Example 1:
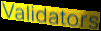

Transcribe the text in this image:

Validators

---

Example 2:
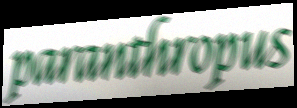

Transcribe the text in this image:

paranthropus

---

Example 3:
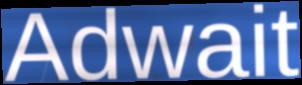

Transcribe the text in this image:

Adwait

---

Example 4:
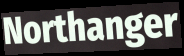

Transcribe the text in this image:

Northanger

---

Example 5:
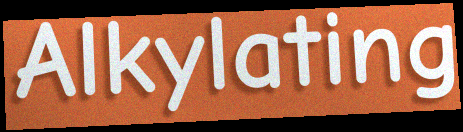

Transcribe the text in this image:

Alkylating